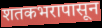
शतकभरापासून